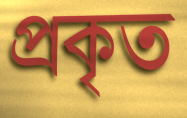
প্ৰকৃত